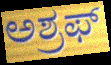
ಅಶ್ರಫ್